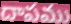
దాపము